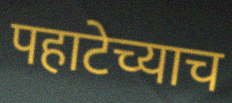
पहाटेच्याच